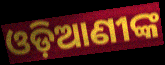
ଓଡ଼ିଆଣୀଙ୍କ